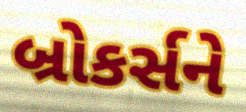
બ્રોકર્સને